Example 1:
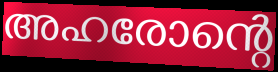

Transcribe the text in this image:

അഹരോന്റെ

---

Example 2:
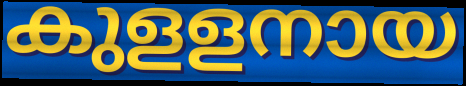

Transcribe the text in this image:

കുളളനായ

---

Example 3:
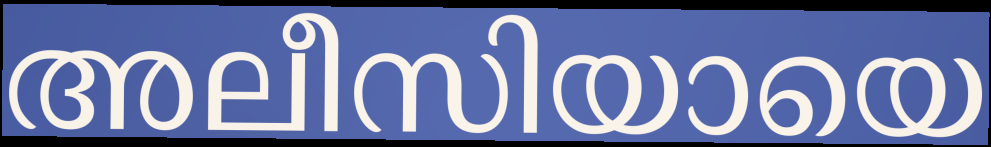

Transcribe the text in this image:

അലീസിയായെ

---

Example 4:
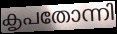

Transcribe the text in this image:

കൃപതോന്നി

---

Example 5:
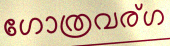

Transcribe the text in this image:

ഗോത്രവര്ഗ